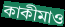
কাকীমাও